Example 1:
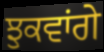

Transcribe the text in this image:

ਝੁਕਵਾਂਗੇ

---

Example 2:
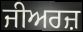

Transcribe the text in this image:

ਜੀਅਰਜ਼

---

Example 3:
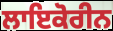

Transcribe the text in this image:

ਲਾਇਕੋਰੀਨ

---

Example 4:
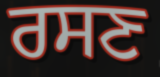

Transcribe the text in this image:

ਰਸਣ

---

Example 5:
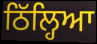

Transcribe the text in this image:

ਠਿੱਲ੍ਹਿਆ